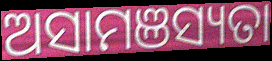
ଅସାମଞସ୍ୟତା